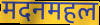
मदनमहल